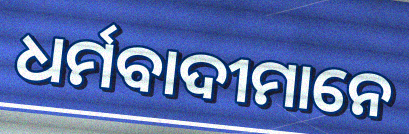
ଧର୍ମବାଦୀମାନେ